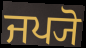
ਜਪ੍ਯੋ